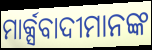
ମାର୍କ୍ସବାଦୀମାନଙ୍କ